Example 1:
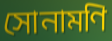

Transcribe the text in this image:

সোনামণি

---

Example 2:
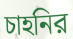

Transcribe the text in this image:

চাহনির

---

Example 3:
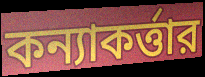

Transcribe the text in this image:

কন্যাকর্ত্তার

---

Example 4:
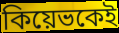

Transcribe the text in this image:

কিয়েভকেই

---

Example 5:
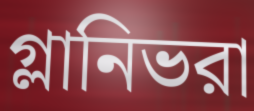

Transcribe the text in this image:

গ্লানিভরা